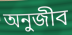
অনুজীব